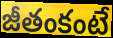
జీతంకంటే